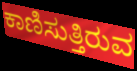
ಕಾಣಿಸುತ್ತಿರುವ